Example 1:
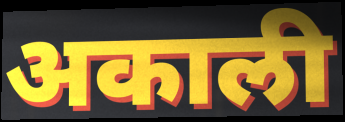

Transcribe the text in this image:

अकाली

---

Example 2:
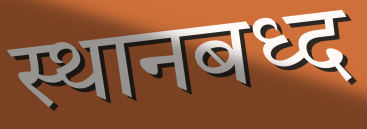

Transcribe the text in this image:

स्थानबध्द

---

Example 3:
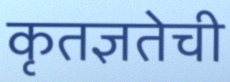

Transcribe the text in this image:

कृतज्ञतेची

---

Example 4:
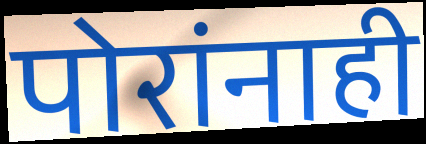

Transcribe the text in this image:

पोरांनाही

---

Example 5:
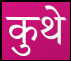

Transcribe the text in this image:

कुथे